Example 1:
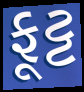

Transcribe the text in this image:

ફૂટ્ટ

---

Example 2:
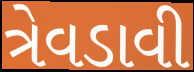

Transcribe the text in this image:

ત્રેવડાવી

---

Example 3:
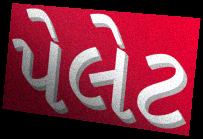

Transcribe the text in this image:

પેલેટ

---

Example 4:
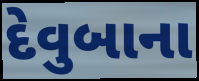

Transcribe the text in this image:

દેવુબાના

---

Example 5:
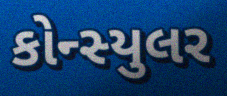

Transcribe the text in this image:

કોન્સ્યુલર